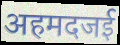
अहमदजई